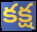
కక్ష